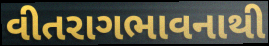
વીતરાગભાવનાથી